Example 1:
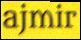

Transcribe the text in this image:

ajmir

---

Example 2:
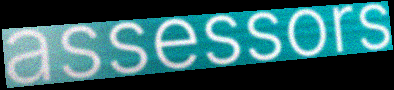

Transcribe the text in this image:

assessors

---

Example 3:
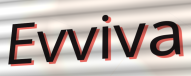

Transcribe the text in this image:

Evviva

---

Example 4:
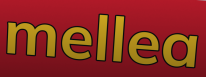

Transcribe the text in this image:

mellea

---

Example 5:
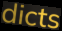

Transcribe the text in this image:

dicts